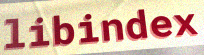
libindex